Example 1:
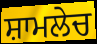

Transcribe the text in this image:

ਸ਼ਾਮਲੇਚ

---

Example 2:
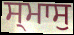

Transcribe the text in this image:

ਸ੍ਮਾਸੁ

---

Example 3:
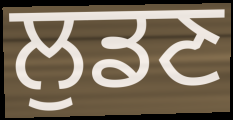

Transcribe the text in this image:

ਲੁਡਣ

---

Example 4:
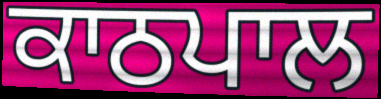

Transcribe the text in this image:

ਕਾਠਪਾਲ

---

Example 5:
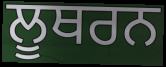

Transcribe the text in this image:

ਲੂਥਰਨ